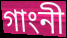
গাংনী